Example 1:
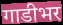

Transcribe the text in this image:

गाडीभर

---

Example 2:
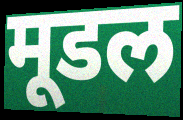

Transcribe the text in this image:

मूडल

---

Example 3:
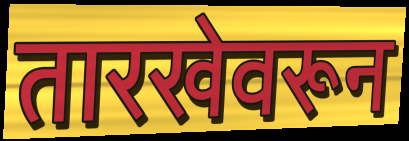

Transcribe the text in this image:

तारखेवरून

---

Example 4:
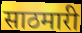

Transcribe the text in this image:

साठमारी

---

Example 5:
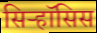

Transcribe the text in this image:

सिऱ्हॉसिस